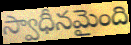
స్వాధీనమైంది